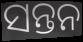
ସନ୍ତନ